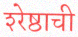
श्रेष्ठाची